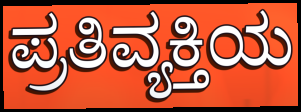
ಪ್ರತಿವ್ಯಕ್ತಿಯ